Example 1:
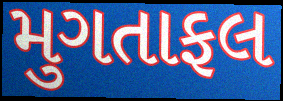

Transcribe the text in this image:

મુગતાફલ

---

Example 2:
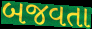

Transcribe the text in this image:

બજવતા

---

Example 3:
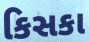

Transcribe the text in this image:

કિસકા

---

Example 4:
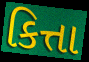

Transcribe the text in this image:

કિત્તા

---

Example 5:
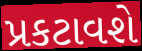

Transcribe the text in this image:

પ્રકટાવશે